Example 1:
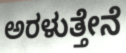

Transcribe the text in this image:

ಅರಳುತ್ತೇನೆ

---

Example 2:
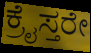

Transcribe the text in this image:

ಕ್ರೈಸ್ತರೇ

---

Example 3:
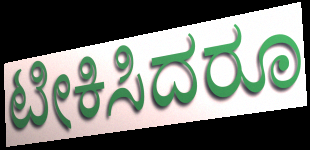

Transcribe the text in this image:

ಟೀಕಿಸಿದರೂ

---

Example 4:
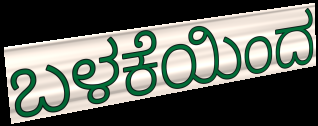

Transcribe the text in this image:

ಬಳಕೆಯಿಂದ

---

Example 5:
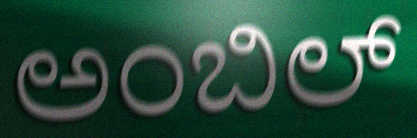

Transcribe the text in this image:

ಅಂಬಿಲ್